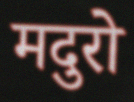
मदुरो